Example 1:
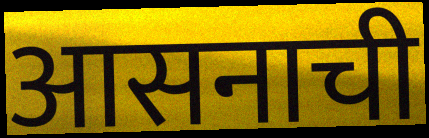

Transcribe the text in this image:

आसनाची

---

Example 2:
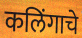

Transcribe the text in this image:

कलिंगाचे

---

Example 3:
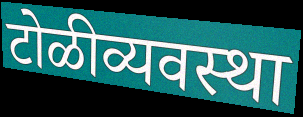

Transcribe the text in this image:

टोळीव्यवस्था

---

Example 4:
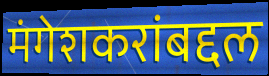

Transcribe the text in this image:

मंगेशकरांबद्दल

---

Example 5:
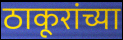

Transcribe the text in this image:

ठाकूरांच्या